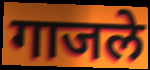
गाजले